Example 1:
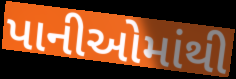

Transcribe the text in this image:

પાનીઓમાંથી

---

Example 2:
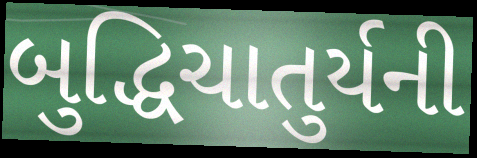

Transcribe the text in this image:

બુદ્ધિચાતુર્યની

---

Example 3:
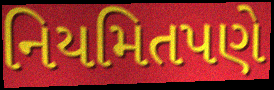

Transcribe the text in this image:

નિયમિતપણે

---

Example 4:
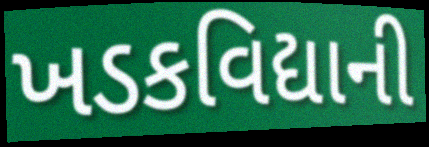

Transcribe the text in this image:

ખડકવિદ્યાની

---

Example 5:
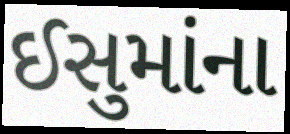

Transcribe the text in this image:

ઈસુમાંના